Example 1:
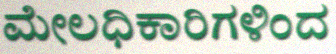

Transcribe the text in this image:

ಮೇಲಧಿಕಾರಿಗಳಿಂದ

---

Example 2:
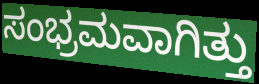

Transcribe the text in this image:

ಸಂಭ್ರಮವಾಗಿತ್ತು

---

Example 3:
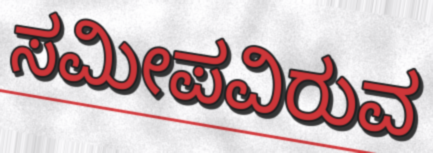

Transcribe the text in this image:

ಸಮೀಪವಿರುವ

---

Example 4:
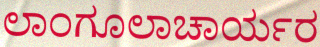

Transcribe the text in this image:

ಲಾಂಗೂಲಾಚಾರ್ಯರ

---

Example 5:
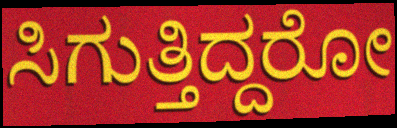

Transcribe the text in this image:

ಸಿಗುತ್ತಿದ್ದರೋ